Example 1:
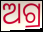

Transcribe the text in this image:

ଅଗ୍ର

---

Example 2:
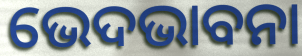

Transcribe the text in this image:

ଭେଦଭାବନା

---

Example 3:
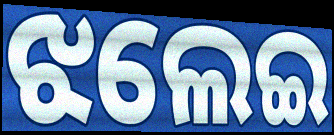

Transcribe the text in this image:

ଝଲେଇ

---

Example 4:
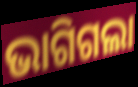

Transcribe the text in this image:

ଭାଗିଗଲା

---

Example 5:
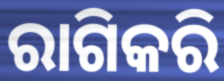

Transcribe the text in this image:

ରାଗିକରି